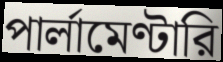
পার্লামেণ্টারি